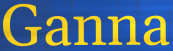
Ganna